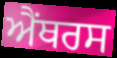
ਐਂਥਰਸ